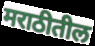
मराठीतील